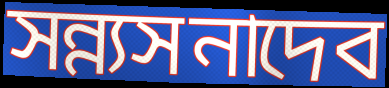
সন্ন্যসনাদেব